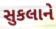
સુકલાને